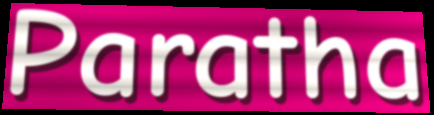
Paratha